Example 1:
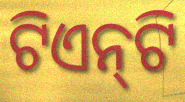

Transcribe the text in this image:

ଟିଏନ୍‌ଟି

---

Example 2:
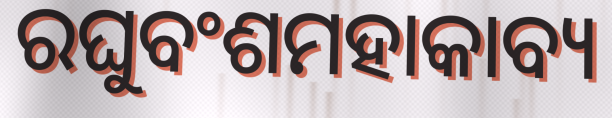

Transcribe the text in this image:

ରଘୁବଂଶମହାକାବ୍ୟ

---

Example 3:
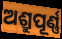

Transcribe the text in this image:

ଅଶ୍ରୁପୂର୍ଣ୍ଣ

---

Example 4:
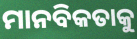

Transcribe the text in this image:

ମାନବିକତାକୁ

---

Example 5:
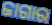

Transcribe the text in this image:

ଜାଗାର